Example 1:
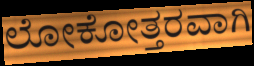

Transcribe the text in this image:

ಲೋಕೋತ್ತರವಾಗಿ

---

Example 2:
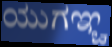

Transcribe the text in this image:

ಯುಗಞ್ಚ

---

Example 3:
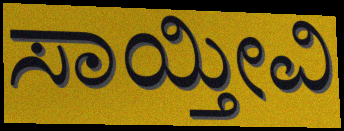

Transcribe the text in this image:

ಸಾಯ್ತೀವಿ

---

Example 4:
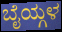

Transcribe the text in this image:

ಬೈಯ್ಗಳ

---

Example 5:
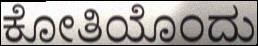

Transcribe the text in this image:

ಕೋತಿಯೊಂದು